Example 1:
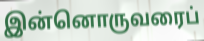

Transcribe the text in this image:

இன்னொருவரைப்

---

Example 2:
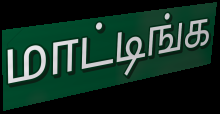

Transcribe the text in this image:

மாட்டிங்க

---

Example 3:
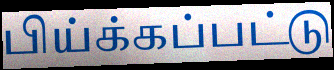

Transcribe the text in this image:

பிய்க்கப்பட்டு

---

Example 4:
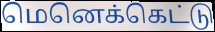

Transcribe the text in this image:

மெனெக்கெட்டு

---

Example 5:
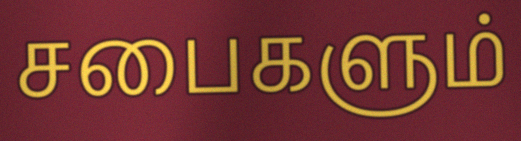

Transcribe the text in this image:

சபைகளும்